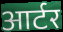
आर्टर